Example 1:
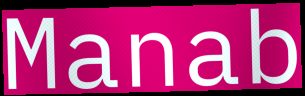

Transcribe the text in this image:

Manab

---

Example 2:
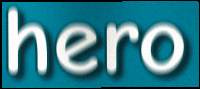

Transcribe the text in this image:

hero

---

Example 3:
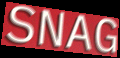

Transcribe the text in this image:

SNAG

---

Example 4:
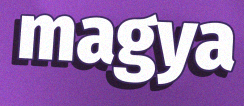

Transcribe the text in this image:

magya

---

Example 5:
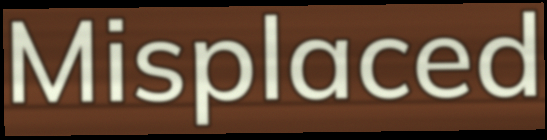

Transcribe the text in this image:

Misplaced